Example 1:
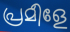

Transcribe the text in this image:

പ്രമീളേ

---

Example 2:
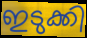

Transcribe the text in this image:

ഇടുക്കി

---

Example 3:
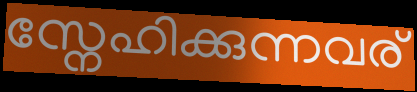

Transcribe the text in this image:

സ്നേഹിക്കുന്നവര്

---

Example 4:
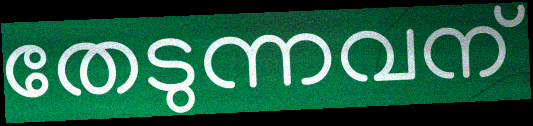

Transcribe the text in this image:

തേടുന്നവന്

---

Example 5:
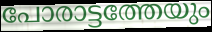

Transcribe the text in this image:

പോരാട്ടത്തേയും